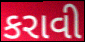
કરાવી